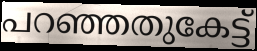
പറഞ്ഞതുകേട്ട്